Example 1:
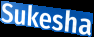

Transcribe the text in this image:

Sukesha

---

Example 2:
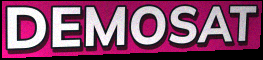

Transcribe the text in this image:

DEMOSAT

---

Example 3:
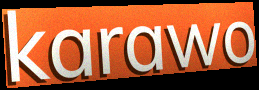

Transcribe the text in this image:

karawo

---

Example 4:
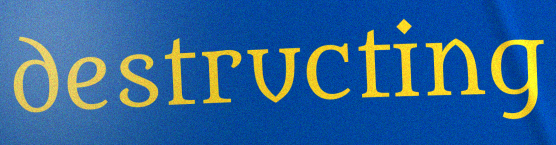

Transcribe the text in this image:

destructing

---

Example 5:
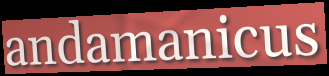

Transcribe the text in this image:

andamanicus